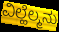
ವಿಲ್ಹೆಲ್ಮನು